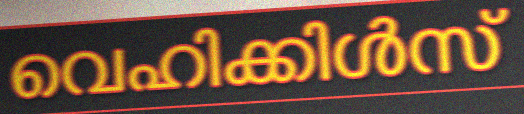
വെഹിക്കിൾസ്